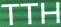
TTH